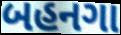
બહનગા